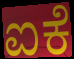
ಐಕೆ